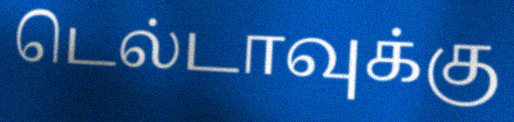
டெல்டாவுக்கு